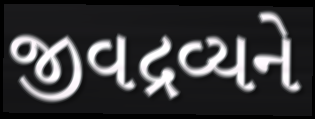
જીવદ્રવ્યને